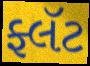
ફ્લૅટ